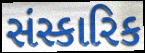
સંસ્કારિક